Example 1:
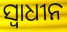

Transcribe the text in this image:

ସ୍ବାଧୀନ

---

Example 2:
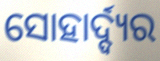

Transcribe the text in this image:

ସୋହାର୍ଦ୍ଦ୍ୟର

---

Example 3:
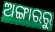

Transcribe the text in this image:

ଅଙ୍ଗାରରୁ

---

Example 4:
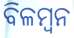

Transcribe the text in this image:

ବିଳମ୍ବନ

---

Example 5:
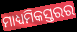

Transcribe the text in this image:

ମାଧ୍ୟମିକସ୍ତରର